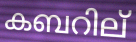
കബറില്